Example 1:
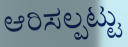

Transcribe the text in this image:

ಆರಿಸಲ್ಪಟ್ಟು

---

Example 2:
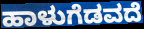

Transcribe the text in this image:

ಹಾಳುಗೆಡವದೆ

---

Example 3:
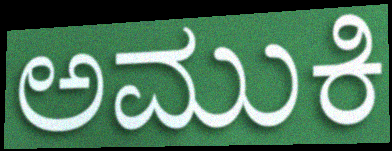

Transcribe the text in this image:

ಅಮುಕಿ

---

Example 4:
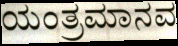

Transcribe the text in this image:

ಯಂತ್ರಮಾನವ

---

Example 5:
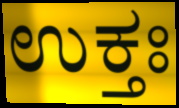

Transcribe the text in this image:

ಉಕ್ತಃ